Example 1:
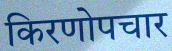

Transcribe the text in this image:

किरणोपचार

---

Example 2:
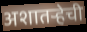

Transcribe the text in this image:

अशातऱ्हेची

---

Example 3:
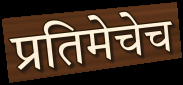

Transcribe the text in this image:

प्रतिमेचेच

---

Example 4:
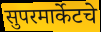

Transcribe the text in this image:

सुपरमार्केटचे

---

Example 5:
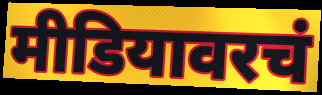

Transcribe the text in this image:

मीडियावरचं